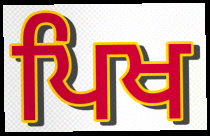
ਪਿਖ